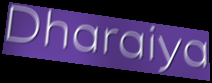
Dharaiya